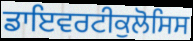
ਡਾਇਵਰਟੀਕੁਲੋਸਿਸ